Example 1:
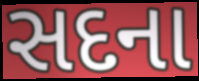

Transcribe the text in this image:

સદના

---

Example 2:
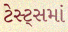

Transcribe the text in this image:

ટેસ્ટ્સમાં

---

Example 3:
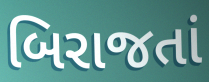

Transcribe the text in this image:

બિરાજતાં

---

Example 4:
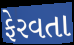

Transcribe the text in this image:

ફેરવતા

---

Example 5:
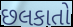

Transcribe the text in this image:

છલકાતો